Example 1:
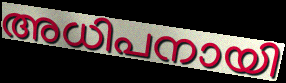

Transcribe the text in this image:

അധിപനായി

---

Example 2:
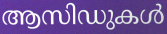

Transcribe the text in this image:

ആസിഡുകൾ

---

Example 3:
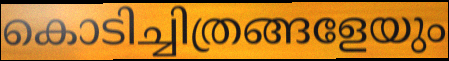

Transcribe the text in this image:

കൊടിച്ചിത്രങ്ങളേയും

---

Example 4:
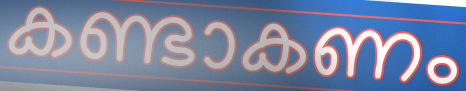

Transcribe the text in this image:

കണ്ടാകണം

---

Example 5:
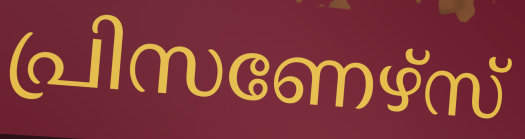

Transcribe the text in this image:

പ്രിസണേഴ്സ്